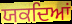
ਯਕਦਿਆਂ